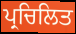
ਪ੍ਰਚਿਲਿਤ